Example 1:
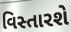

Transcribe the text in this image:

વિસ્તારશે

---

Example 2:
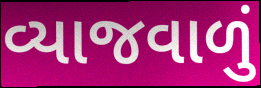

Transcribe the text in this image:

વ્યાજવાળું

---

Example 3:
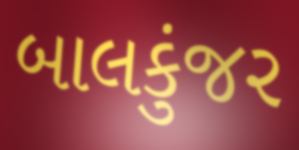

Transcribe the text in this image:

બાલકુંજર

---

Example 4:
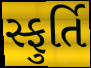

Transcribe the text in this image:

સ્ફુર્તિ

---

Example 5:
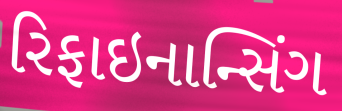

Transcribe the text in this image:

રિફાઇનાન્સિંગ